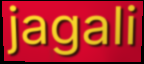
jagali